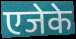
एजेके